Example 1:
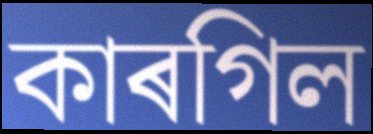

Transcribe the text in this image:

কাৰগিল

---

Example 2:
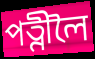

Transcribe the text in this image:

পত্নীলৈ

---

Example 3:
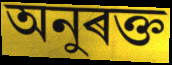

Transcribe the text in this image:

অনুৰক্ত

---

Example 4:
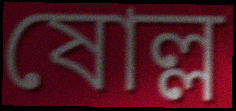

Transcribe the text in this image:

ষোল্ল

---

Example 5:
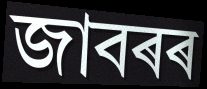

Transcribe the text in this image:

জাবৰৰ